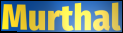
Murthal